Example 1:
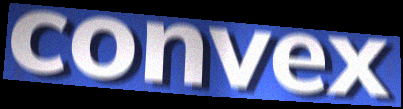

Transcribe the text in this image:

convex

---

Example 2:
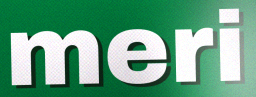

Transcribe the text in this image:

meri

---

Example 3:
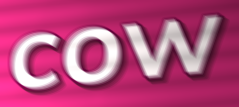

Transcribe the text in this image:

cow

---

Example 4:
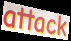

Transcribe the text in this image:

attack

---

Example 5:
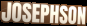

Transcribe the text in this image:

JOSEPHSON